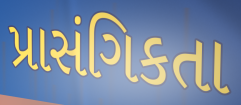
પ્રાસંગિકતા